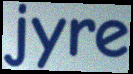
jyre